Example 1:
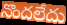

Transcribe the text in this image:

నొందలేదు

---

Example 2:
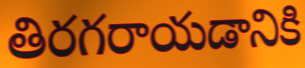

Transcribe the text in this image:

తిరగరాయడానికి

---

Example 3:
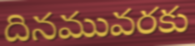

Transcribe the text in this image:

దినమువరకు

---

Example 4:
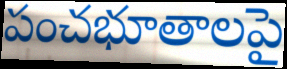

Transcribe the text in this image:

పంచభూతాలపై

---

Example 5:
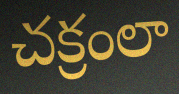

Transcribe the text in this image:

చక్రంలా